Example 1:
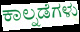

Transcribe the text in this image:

ಕಾಲ್ನಡೆಗಳು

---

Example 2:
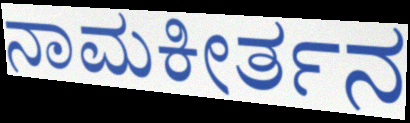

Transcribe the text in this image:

ನಾಮಕೀರ್ತನ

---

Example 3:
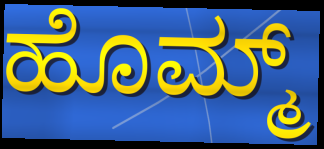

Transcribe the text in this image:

ಹೊಮ್ಮ್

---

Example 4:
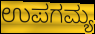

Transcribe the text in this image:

ಉಪಗಮ್ಯ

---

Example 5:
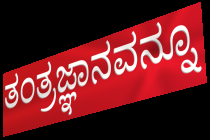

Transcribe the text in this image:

ತಂತ್ರಜ್ಞಾನವನ್ನೂ